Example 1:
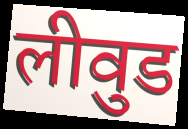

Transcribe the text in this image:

लीवुड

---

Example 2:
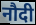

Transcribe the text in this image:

नौदी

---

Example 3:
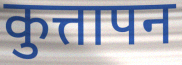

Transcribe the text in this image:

कुत्तापन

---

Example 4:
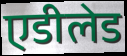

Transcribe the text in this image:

एडीलेड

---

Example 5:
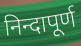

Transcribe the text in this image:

निन्दापूर्ण